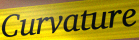
Curvature